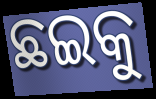
ଛଇକୁ